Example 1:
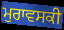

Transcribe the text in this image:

ਮੁਰਾਵਸਕੀ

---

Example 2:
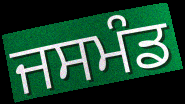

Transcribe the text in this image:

ਜਸਮੰਡ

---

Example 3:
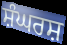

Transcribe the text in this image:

ਸ਼ੰਘਰਸ਼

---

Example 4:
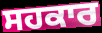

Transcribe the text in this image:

ਸਹਕਾਰ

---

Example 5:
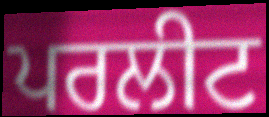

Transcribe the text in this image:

ਪਰਲੀਟ